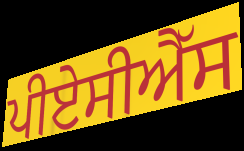
ਪੀਏਸੀਐੱਸ